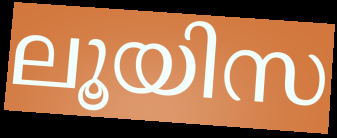
ലൂയിസ